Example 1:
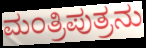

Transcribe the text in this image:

ಮಂತ್ರಿಪುತ್ರನು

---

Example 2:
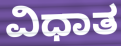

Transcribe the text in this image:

ವಿಧಾತ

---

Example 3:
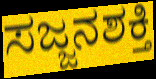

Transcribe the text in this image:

ಸಜ್ಜನಶಕ್ತಿ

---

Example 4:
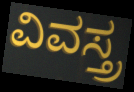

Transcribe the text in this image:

ವಿವಸ್ತ್ರ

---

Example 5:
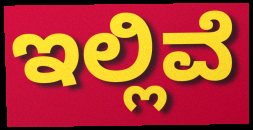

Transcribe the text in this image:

ಇಲ್ಲಿವೆ